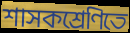
শাসকশ্রেণিতে